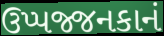
ઉપ્પજ્જનકાનં